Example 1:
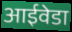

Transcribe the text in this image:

आईवेडा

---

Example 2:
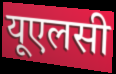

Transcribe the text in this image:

यूएलसी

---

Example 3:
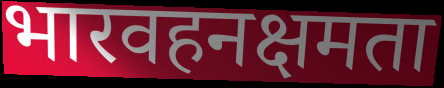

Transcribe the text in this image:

भारवहनक्षमता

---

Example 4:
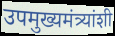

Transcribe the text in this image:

उपमुख्यमंत्र्यांशी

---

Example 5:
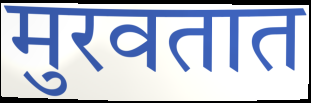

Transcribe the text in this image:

मुरवतात